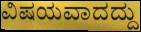
ವಿಷಯವಾದದ್ದು